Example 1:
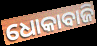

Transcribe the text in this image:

ଧୋକାବାଜି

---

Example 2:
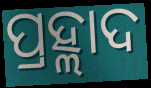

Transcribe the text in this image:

ପ୍ରହ୍ଲାଦ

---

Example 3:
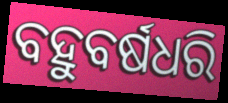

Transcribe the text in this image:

ବହୁବର୍ଷଧରି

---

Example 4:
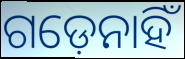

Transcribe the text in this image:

ଗଡ଼େନାହିଁ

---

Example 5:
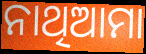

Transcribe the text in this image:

ନାଥିଆମା